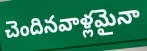
చెందినవాళ్లమైనా